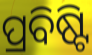
ପ୍ରବିଷ୍ଟି